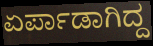
ಏರ್ಪಾಡಾಗಿದ್ದ